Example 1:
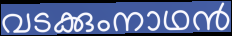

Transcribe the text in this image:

വടക്കുംനാഥൻ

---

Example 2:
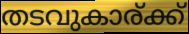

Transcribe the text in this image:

തടവുകാര്ക്ക്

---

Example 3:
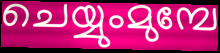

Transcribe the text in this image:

ചെയ്യുംമുമ്പേ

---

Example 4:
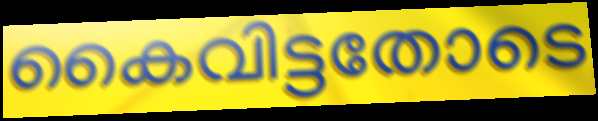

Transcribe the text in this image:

കൈവിട്ടതോടെ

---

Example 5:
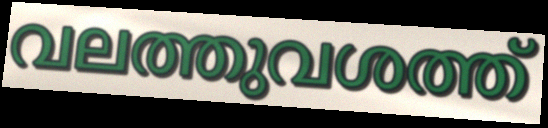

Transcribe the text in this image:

വലത്തുവശത്ത്